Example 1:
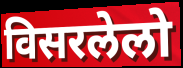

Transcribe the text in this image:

विसरलेलो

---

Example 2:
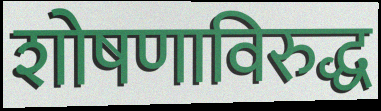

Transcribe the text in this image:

शोषणाविरुद्ध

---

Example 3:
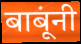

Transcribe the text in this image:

बाबूंनी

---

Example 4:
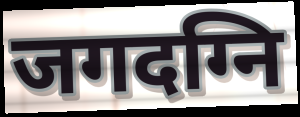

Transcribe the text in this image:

जगदग्नि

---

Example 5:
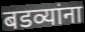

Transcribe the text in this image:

बडव्यांना